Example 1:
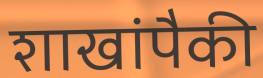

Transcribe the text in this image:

शाखांपैकी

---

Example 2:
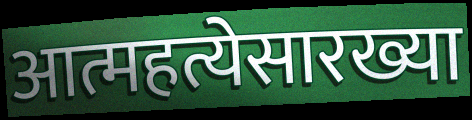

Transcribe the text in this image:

आत्महत्येसारख्या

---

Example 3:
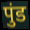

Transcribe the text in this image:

पुंड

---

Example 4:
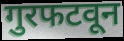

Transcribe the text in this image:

गुरफटवून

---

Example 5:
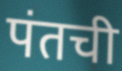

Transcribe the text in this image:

पंतची